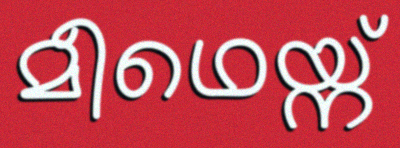
മീഥെയ്ന്